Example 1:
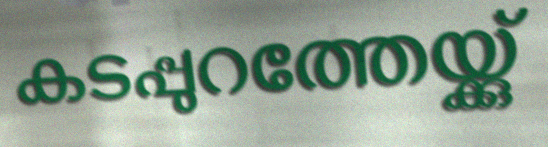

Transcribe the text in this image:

കടപ്പുറത്തേയ്ക്കു്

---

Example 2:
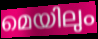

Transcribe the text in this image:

മെയിലും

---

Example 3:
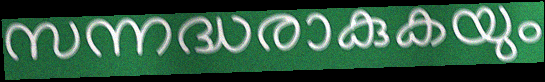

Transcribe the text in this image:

സന്നദ്ധരാകുകയും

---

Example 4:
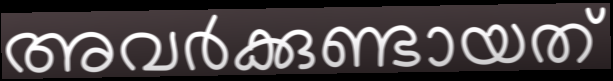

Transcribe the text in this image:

അവർക്കുണ്ടായത്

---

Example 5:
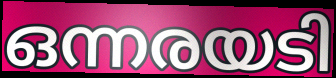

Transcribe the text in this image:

ഒന്നരയടി